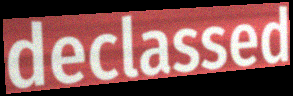
declassed